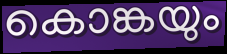
കൊങ്കയും